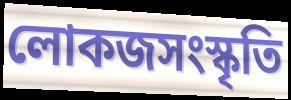
লোকজসংস্কৃতি